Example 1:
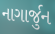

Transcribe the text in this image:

નાગાર્જુન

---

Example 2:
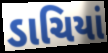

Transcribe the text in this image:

ડાચિયાં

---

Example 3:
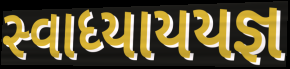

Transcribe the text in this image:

સ્વાધ્યાયયજ્ઞ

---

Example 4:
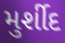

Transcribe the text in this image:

મુર્શીદ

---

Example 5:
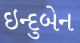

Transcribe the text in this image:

ઇન્દુબેન